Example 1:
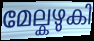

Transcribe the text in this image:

മേല്കഴുകി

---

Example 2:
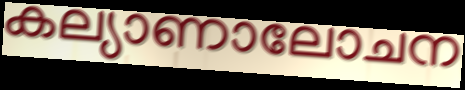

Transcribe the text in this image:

കല്യാണാലോചന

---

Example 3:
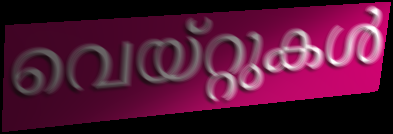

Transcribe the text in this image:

വെയ്റ്റുകൾ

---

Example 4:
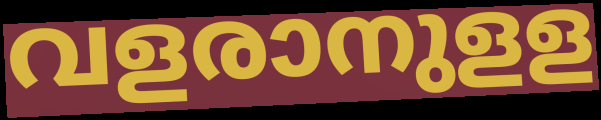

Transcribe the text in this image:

വളരാനുളള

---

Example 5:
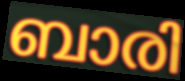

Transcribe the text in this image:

ബാരി